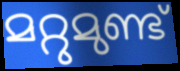
മറ്റുമുണ്ട്